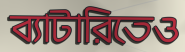
ব্যাটারিতেও